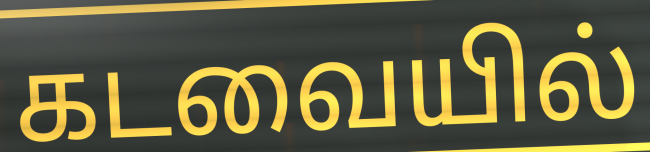
கடவையில்